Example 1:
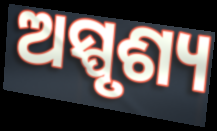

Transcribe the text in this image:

ଅସ୍ପୃଶ୍ୟ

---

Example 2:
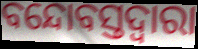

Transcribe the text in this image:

ବନ୍ଦୋବସ୍ତଦ୍ୱାରା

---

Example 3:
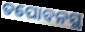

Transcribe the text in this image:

ତପୋବନସ୍ଥ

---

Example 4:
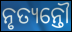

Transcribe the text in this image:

ନୃତ୍ୟନ୍ତୌ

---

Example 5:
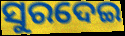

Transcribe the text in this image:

ସୁରଦେଇ